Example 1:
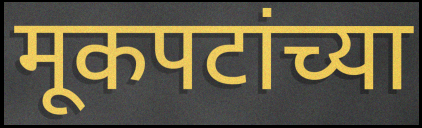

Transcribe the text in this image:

मूकपटांच्या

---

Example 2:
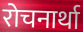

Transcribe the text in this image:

रोचनार्था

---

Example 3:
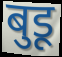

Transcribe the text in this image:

बुडू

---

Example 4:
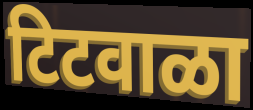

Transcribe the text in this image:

टिटवाळा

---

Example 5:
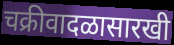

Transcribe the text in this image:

चक्रीवादळासारखी